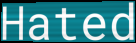
Hated